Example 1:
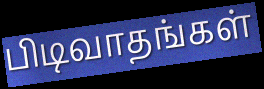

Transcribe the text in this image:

பிடிவாதங்கள்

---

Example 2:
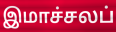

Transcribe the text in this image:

இமாச்சலப்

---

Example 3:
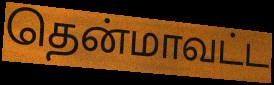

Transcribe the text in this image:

தென்மாவட்ட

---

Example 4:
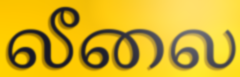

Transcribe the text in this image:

லீலை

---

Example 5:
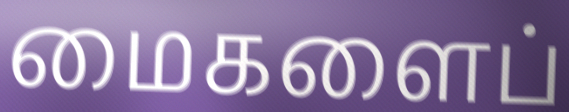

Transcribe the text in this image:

மைகளைப்